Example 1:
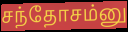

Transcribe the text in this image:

சந்தோசம்னு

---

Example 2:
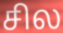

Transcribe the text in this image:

சில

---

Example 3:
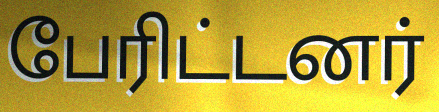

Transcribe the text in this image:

பேரிட்டனர்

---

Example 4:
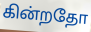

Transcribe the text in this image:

கின்றதோ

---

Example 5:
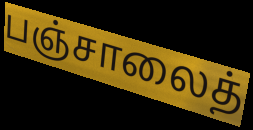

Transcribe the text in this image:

பஞ்சாலைத்